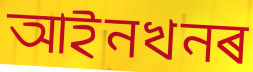
আইনখনৰ